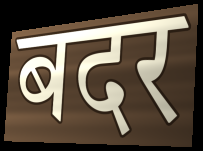
बदर